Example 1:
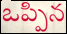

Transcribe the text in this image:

ఒప్పిన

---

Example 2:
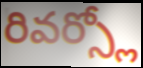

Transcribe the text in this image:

రివర్స్లో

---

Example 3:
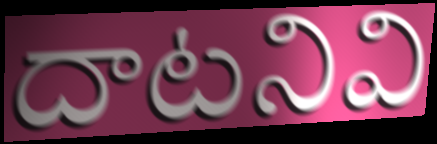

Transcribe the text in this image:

దాటనివి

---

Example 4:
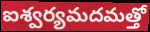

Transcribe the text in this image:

ఐశ్వర్యమదమత్తో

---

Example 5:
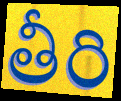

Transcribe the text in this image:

తీరి